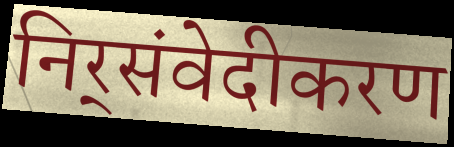
निर्संवेदीकरण